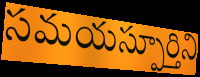
సమయస్పూర్తిని